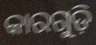
କାରଗୁଡ଼ି